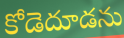
కోడెదూడను